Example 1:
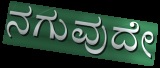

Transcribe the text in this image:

ನಗುವುದೇ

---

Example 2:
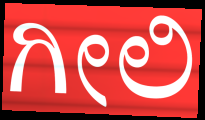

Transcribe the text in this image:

ಗೀಲಿ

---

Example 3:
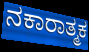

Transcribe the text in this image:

ನಕಾರಾತ್ಮಕ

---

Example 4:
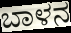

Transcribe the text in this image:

ಬಾಳನ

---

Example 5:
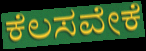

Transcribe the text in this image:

ಕೆಲಸವೇಕೆ